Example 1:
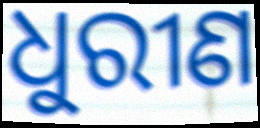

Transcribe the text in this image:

ଧୁରୀଣ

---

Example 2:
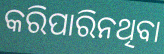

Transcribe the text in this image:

କରିପାରିନଥିବା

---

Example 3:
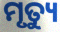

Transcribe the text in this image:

ମୃତ୍ୟୁ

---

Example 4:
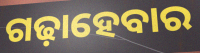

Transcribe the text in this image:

ଗଢ଼ାହେବାର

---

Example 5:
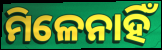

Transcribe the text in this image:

ମିଳେନାହିଁ